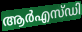
ആർഎസ്ഡി